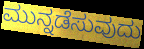
ಮುನ್ನಡೆಸುವುದು